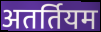
अतर्तियम